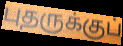
புதருக்குப்